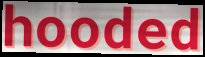
hooded